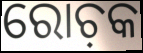
ରୋଚ଼କ